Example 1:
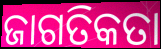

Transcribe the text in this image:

ଜାଗତିକତା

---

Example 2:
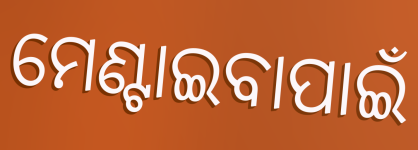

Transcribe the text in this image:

ମେଣ୍ଟାଇବାପାଇଁ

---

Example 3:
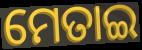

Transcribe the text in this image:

ମେତାଇ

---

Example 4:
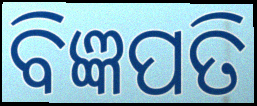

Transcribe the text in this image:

ବିଜ୍ଞପତି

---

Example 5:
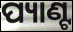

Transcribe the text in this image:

ପ୍ୟାଣ୍ଟ